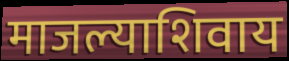
माजल्याशिवाय